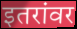
इतरांवर